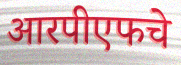
आरपीएफचे